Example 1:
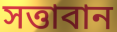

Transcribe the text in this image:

সত্তাবান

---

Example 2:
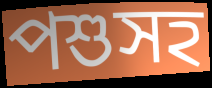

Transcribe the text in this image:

পশুসহ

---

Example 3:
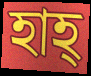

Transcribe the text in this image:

হাহ্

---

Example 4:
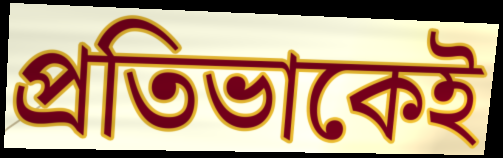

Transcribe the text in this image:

প্রতিভাকেই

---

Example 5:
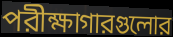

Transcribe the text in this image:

পরীক্ষাগারগুলোর